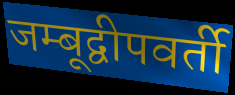
जम्बूद्वीपवर्ती